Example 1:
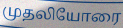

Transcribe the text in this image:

முதலியோரை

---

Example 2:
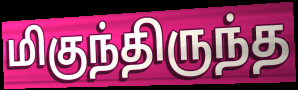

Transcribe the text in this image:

மிகுந்திருந்த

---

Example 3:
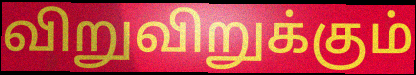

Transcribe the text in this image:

விறுவிறுக்கும்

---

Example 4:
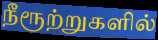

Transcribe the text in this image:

நீரூற்றுகளில்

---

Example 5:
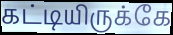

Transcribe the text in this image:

கட்டியிருக்கே